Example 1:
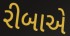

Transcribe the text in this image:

રીબાએ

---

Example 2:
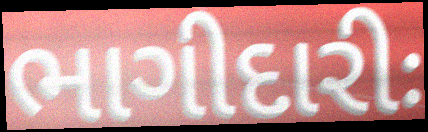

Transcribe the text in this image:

ભાગીદારીઃ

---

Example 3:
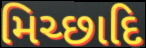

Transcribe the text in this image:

મિચ્છાદિ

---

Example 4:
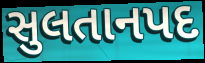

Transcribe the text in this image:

સુલતાનપદ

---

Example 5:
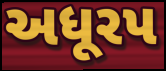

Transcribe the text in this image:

અધૂરપ